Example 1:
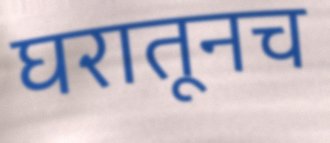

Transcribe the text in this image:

घरातूनच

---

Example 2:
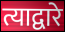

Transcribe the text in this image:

त्याद्वारे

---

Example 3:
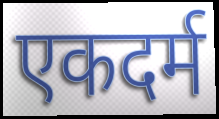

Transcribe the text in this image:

एकदर्म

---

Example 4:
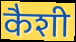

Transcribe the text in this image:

कैशी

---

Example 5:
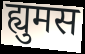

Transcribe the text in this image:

ह्युमस